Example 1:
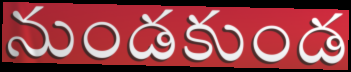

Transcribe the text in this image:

నుండకుండ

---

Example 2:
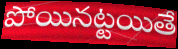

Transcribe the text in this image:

పోయినట్టయితే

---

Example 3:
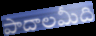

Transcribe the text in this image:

పాదాలమీది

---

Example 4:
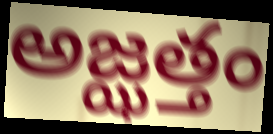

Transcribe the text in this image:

అజ్ఝత్తం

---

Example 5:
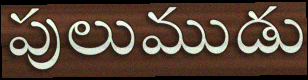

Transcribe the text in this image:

పులుముడు